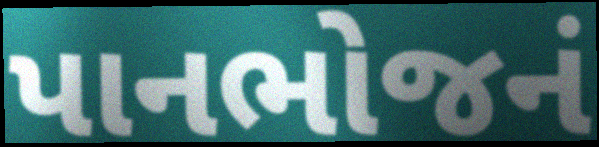
પાનભોજનં